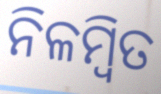
ନିଳମ୍ବିତ